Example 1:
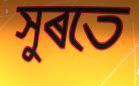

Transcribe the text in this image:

সুৰতে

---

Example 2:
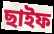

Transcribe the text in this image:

ছাইফ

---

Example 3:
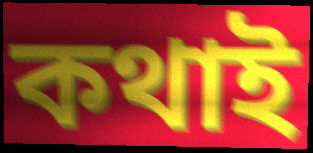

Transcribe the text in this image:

কথাই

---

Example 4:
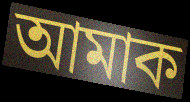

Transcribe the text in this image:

আমাক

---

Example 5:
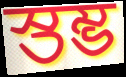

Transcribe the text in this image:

স্তম্ভ